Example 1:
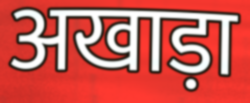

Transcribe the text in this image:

अखाड़ा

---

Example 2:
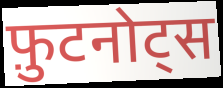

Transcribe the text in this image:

फ़ुटनोट्स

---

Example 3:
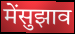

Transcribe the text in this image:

मेंसुझाव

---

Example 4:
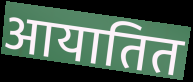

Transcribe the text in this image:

आयातित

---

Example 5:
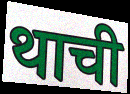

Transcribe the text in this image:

थाची